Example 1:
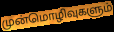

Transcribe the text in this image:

முன்மொழிவுகளும்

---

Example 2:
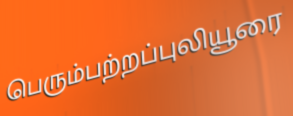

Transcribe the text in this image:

பெரும்பற்றப்புலியூரை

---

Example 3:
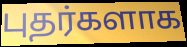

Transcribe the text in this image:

புதர்களாக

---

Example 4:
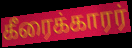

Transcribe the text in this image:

கீரைக்காரர்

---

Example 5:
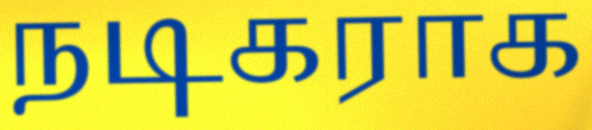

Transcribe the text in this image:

நடிகராக